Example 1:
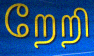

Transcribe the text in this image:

றேறி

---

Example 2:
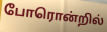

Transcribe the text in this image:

போரொன்றில்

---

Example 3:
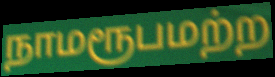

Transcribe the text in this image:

நாமரூபமற்ற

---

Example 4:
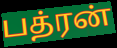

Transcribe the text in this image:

பத்ரன்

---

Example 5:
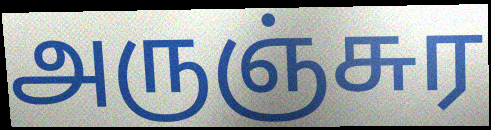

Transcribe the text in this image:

அருஞ்சுர